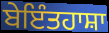
ਬੇਇੰਤਹਾਸ਼ਾ